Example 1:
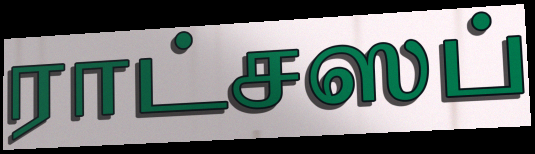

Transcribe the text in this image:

ராட்சஸப்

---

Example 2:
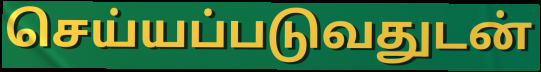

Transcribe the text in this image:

செய்யப்படுவதுடன்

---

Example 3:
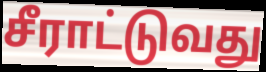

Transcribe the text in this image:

சீராட்டுவது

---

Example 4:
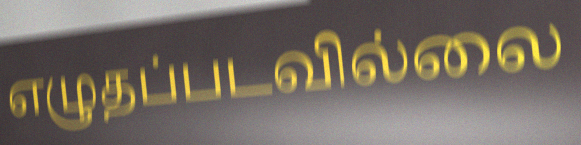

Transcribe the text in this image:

எழுதப்படவில்லை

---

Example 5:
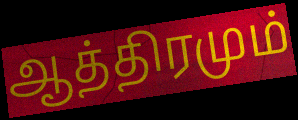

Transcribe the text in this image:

ஆத்திரமும்